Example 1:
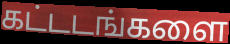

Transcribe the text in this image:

கட்டடங்களை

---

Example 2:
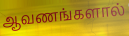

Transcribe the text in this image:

ஆவணங்களால்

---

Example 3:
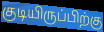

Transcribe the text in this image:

குடியிருப்பிற்கு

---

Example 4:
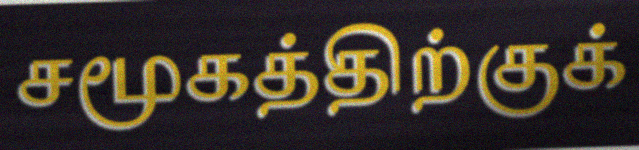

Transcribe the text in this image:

சமூகத்திற்குக்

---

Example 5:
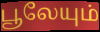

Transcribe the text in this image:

பூலேயும்